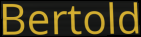
Bertold